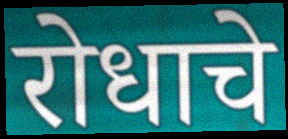
रोधाचे